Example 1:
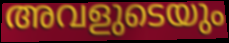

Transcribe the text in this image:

അവളുടെയും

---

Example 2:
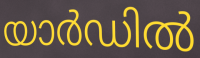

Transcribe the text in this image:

യാർഡിൽ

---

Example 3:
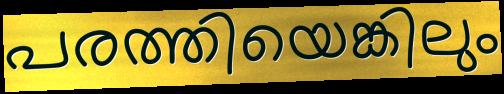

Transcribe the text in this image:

പരത്തിയെങ്കിലും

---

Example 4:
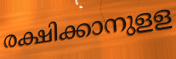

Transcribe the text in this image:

രക്ഷിക്കാനുളള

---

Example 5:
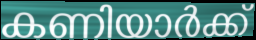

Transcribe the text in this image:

കണിയാർക്ക്